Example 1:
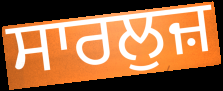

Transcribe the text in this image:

ਸਾਰਲੁਜ਼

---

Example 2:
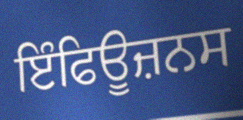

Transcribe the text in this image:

ਇੰਫਿਊਜ਼ਨਸ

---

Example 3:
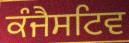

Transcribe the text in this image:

ਕੰਜੈਸਟਿਵ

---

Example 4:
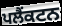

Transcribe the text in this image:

ਪਲੈਂਕਟਨ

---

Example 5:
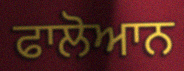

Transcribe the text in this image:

ਫਾਲੋਆਨ